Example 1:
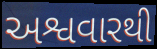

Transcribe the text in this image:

અશ્વવારથી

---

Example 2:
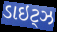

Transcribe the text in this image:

ડાઇટ્ઝ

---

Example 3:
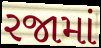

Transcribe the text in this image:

રજામાં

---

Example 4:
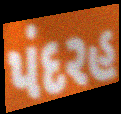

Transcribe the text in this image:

પંદરહ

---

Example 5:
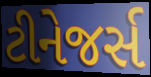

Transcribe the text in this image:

ટીનેજર્સ